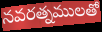
నవరత్నములతో